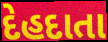
દેહદાતા